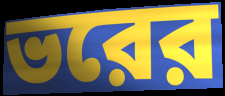
ভরের